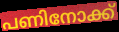
പണിനോക്ക്